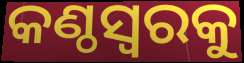
କଣ୍ଠସ୍ୱରକୁ